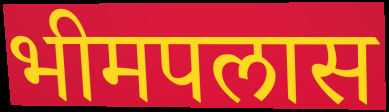
भीमपलास